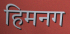
हिमनग